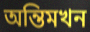
অন্তিমখন